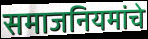
समाजनियमांचे